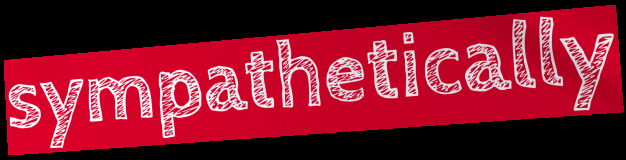
sympathetically